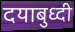
दयाबुध्दी